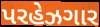
પરહેઝગાર